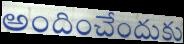
అందించేందుకు